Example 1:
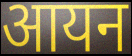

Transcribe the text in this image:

आयन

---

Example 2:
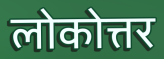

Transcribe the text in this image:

लोकोत्तर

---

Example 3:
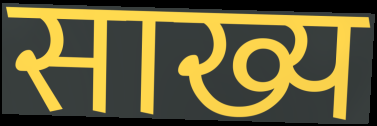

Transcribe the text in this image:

साख्य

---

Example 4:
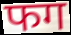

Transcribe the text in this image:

फग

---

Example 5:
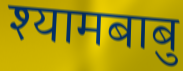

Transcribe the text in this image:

श्यामबाबु